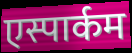
एस्पार्कम